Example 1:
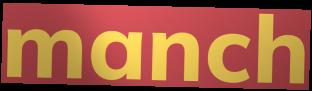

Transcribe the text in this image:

manch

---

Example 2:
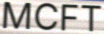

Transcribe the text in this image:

MCFT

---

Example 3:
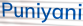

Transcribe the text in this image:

Puniyani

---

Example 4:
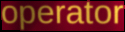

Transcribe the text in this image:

operator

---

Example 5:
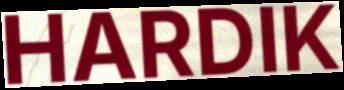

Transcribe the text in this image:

HARDIK